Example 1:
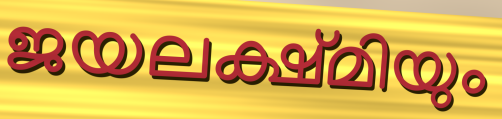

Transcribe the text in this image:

ജയലക്ഷ്മിയും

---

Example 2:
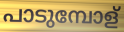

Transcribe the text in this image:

പാടുമ്പോള്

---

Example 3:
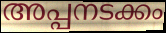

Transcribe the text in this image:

അപ്പനടക്കം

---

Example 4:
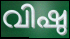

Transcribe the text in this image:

വിഷു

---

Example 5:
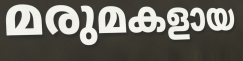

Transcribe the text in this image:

മരുമകളായ